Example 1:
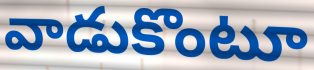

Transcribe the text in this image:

వాడుకొంటూ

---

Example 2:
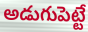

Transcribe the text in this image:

అడుగుపెట్టే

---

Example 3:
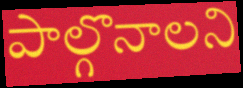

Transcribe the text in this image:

పాల్గొనాలని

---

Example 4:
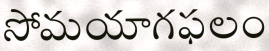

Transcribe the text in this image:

సోమయాగఫలం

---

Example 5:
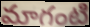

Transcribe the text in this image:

మాగంటి